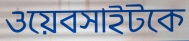
ওয়েবসাইটকে